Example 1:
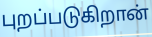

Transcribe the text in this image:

புறப்படுகிறான்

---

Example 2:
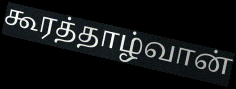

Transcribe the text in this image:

கூரத்தாழ்வான்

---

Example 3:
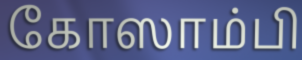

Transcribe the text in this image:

கோஸாம்பி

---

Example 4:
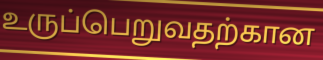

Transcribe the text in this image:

உருப்பெறுவதற்கான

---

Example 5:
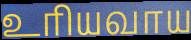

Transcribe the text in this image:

உரியவாய